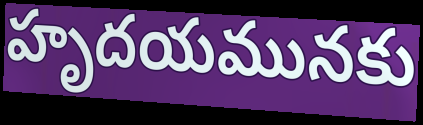
హృదయమునకు